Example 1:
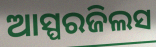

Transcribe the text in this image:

ଆସ୍ପରଜିଲସ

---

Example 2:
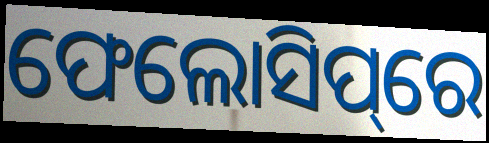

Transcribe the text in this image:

ଫେଲୋସିପ୍‌ରେ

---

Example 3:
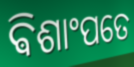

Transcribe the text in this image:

ଵିଶାଂପତେ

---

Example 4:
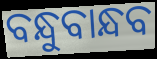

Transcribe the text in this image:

ବନ୍ଧୁବାନ୍ଧବ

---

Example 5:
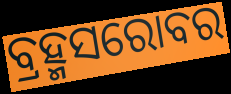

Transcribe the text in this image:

ବ୍ରହ୍ମସରୋବର